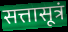
सत्तासूत्रं